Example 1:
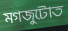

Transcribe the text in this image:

মগজুটোত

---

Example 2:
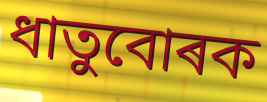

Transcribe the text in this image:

ধাতুবোৰক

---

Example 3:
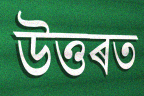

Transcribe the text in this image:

উত্তৰত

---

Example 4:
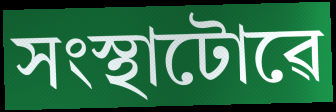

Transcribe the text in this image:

সংস্থাটোৱে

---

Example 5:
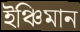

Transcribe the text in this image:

ইঞ্চিমান